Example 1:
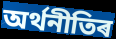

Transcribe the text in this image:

অৰ্থনীতিৰ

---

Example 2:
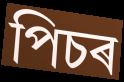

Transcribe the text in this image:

পিচৰ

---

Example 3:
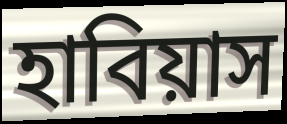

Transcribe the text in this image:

হাবিয়াস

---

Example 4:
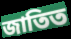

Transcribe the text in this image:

জাতিত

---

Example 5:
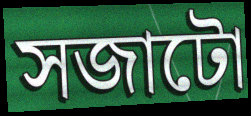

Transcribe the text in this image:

সজাটো